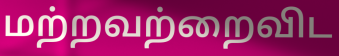
மற்றவற்றைவிட